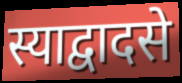
स्याद्वादसे